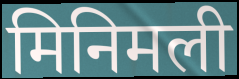
मिनिमली